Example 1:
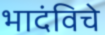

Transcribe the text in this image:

भादंविचे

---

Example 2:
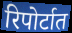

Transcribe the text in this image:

रिपोर्टात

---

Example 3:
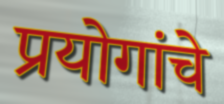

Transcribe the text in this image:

प्रयोगांचे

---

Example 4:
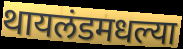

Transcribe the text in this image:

थायलंडमधल्या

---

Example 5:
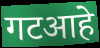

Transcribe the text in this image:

गटआहे